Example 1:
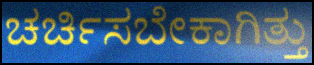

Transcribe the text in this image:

ಚರ್ಚಿಸಬೇಕಾಗಿತ್ತು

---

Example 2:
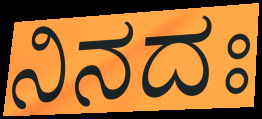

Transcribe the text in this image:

ನಿನದಃ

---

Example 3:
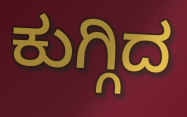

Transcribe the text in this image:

ಕುಗ್ಗಿದ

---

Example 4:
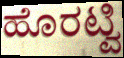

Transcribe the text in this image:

ಹೊರಟ್ವಿ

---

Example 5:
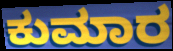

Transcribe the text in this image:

ಕುಮಾರ